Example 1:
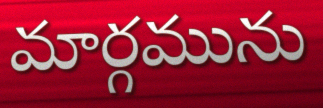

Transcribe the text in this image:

మార్గమును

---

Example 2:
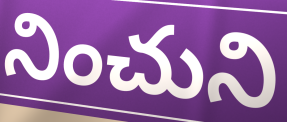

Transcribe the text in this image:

నించుని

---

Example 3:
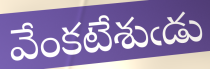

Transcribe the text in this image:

వేంకటేశుఁడు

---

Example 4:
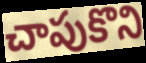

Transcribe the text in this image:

చాపుకొని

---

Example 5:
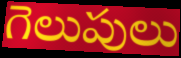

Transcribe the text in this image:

గెలుపులు